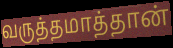
வருத்தமாத்தான்